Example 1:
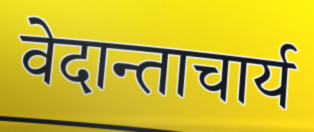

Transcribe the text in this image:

वेदान्ताचार्य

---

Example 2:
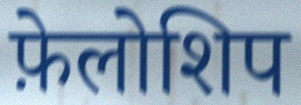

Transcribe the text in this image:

फ़ेलोशिप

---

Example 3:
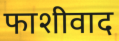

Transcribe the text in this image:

फाशीवाद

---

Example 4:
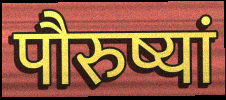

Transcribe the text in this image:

पौरुष्यां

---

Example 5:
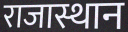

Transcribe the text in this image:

राजास्थान